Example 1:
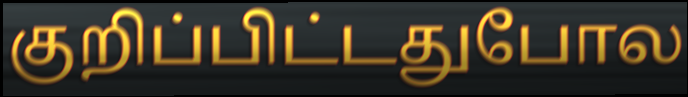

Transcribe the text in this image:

குறிப்பிட்டதுபோல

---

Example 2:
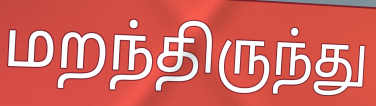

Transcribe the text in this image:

மறந்திருந்து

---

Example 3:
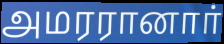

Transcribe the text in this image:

அமரரானார்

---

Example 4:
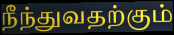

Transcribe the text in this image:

நீந்துவதற்கும்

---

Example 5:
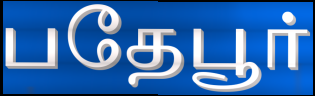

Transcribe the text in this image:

பதேபூர்